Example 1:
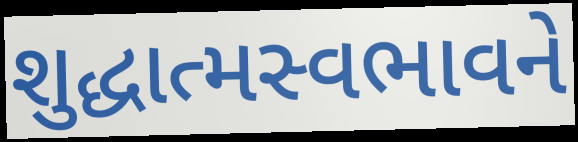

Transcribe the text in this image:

શુદ્ધાત્મસ્વભાવને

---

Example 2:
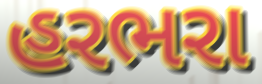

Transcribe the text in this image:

હરભરા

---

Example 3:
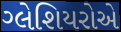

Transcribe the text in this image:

ગ્લેશિયરોએ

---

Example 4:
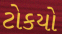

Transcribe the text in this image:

ટોકયો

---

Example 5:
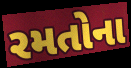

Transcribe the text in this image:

રમતોના